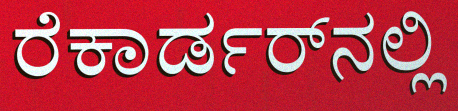
ರೆಕಾರ್ಡರ್‌ನಲ್ಲಿ